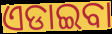
ଏଡାଇବା